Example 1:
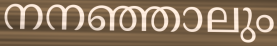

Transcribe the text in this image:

നനഞ്ഞാലും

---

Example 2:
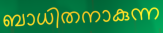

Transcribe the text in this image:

ബാധിതനാകുന്ന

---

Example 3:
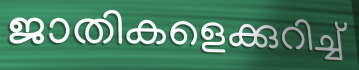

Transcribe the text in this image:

ജാതികളെക്കുറിച്ച്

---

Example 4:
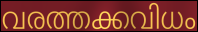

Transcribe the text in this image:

വരത്തക്കവിധം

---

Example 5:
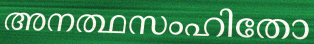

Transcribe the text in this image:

അനത്ഥസംഹിതോ